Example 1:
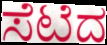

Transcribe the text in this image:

ಸೆಟೆದ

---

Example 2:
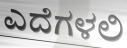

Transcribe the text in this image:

ಎದೆಗಳಲಿ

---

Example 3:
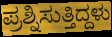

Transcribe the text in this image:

ಪ್ರಶ್ನಿಸುತ್ತಿದ್ದಳು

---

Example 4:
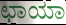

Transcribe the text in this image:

ಛಾಯಾ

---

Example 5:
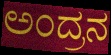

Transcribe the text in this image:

ಅಂದ್ರನ